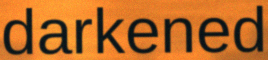
darkened